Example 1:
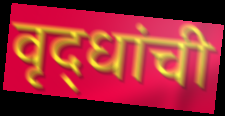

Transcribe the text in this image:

वृद्धांची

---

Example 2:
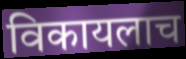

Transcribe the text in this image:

विकायलाच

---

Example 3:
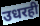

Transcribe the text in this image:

उधरही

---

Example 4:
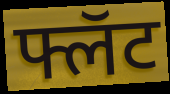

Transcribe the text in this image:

फ्लॅट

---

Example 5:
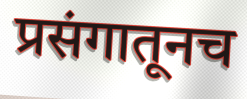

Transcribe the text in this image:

प्रसंगातूनच